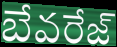
బేవరేజ్